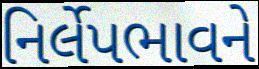
નિર્લેપભાવને